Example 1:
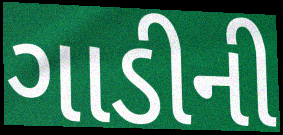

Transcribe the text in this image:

ગાડીની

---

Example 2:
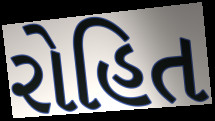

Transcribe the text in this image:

રોહિત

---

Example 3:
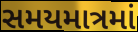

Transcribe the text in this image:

સમયમાત્રમાં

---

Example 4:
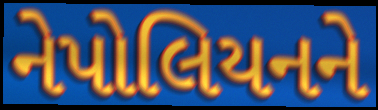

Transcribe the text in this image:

નેપોલિયનને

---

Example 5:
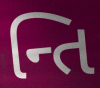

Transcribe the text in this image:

ન્તિ